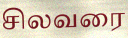
சிலவரை